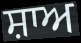
ਸ਼ਾਅ